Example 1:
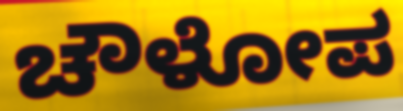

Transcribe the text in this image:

ಚೌಳೋಪ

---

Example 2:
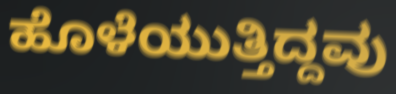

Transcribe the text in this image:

ಹೊಳೆಯುತ್ತಿದ್ದವು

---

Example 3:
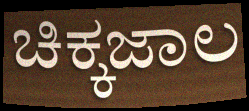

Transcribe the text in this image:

ಚಿಕ್ಕಜಾಲ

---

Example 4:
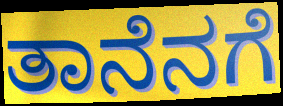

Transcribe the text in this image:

ತಾನೆನಗೆ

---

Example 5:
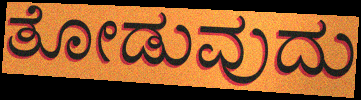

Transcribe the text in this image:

ತೋಡುವುದು